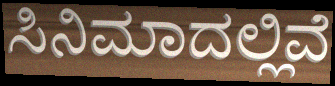
ಸಿನಿಮಾದಲ್ಲಿವೆ